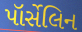
પૉર્સેલિન